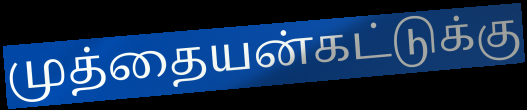
முத்தையன்கட்டுக்கு